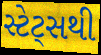
સ્ટેટ્સથી